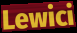
Lewici